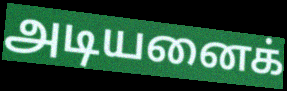
அடியனைக்